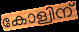
കോള്വിന്